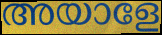
അയാളേ